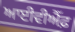
ਆਈਵੀਐੱਫ਼